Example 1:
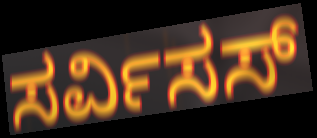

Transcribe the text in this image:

ಸರ್ವಿಸಸ್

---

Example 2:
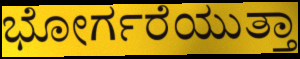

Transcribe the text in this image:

ಭೋರ್ಗರೆಯುತ್ತಾ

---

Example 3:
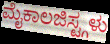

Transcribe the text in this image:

ಮೈಕಾಲಜಿಸ್ಟ್ಗಳು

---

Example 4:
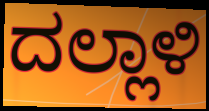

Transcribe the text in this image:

ದಲ್ಲಾಳಿ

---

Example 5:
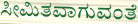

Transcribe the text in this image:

ಸೀಮಿತವಾಗುವಂತೆ